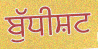
ਬੁੱਧੀਸ਼ਟ